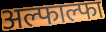
अल्फाल्फा